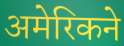
अमेरिकने